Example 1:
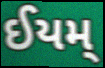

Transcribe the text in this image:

ઈયમ્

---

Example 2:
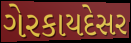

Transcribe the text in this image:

ગેરકાયદેસર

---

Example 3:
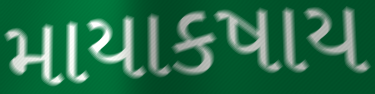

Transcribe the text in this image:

માયાકષાય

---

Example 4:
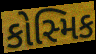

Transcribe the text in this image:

કોસ્મિક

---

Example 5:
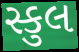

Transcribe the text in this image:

સ્કુલ